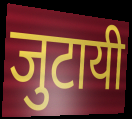
जुटायी